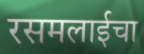
रसमलाईचा